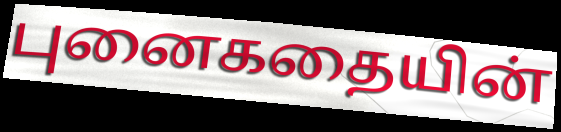
புனைகதையின்